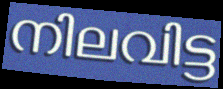
നിലവിട്ട